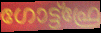
ഗോട്ട്ഫ്രേ